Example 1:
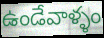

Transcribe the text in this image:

ఉండేవాళ్ళం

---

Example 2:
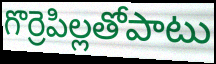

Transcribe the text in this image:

గొర్రెపిల్లతోపాటు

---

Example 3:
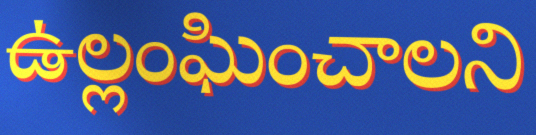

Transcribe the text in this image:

ఉల్లంఘించాలని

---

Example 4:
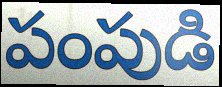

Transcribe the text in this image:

పంపుడి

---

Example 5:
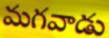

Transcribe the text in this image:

మగవాడు